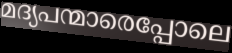
മദ്യപന്മാരെപ്പോലെ